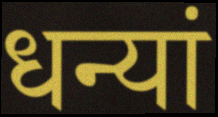
धन्यां